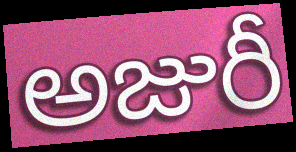
అజురీ